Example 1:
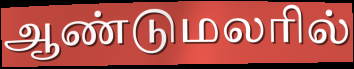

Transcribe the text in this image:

ஆண்டுமலரில்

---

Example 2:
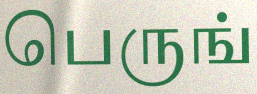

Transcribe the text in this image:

பெருங்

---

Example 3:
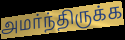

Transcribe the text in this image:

அமர்ந்திருக்க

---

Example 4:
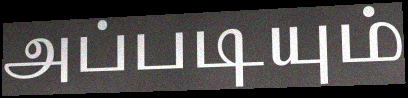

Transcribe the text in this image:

அப்படியும்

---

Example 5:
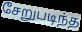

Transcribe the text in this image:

சேறுபடிந்த